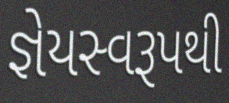
જ્ઞેયસ્વરૂપથી